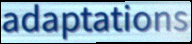
adaptations